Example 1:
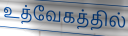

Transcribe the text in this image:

உத்வேகத்தில்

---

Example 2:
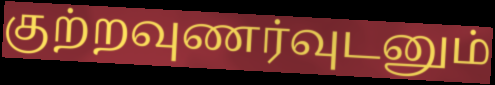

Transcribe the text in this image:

குற்றவுணர்வுடனும்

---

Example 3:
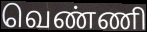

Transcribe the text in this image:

வெண்ணி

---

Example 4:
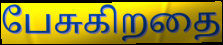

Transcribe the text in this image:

பேசுகிறதை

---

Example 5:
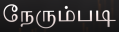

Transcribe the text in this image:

நேரும்படி